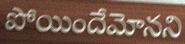
పోయిందేమోనని